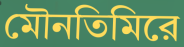
মৌনতিমিরে